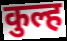
कुल्ह